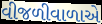
વીજળીવાળાએ